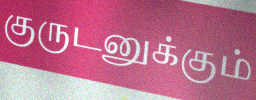
குருடனுக்கும்